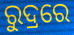
ରୁଦ୍ରରେ